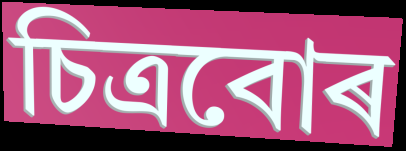
চিত্ৰবোৰ